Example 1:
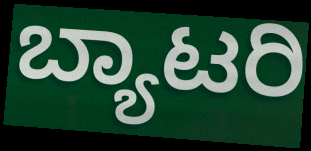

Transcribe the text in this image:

ಬ್ಯಾಟರಿ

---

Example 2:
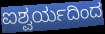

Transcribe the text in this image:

ಐಶ್ವರ್ಯದಿಂದ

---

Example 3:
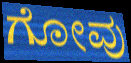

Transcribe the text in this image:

ಗೋವು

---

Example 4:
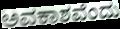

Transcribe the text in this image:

ಅವಕಾಶವೆಂದು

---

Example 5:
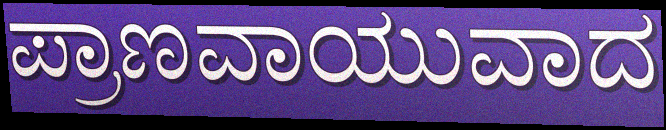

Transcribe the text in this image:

ಪ್ರಾಣವಾಯುವಾದ